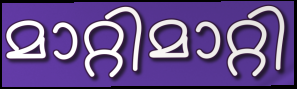
മാറ്റിമാറ്റി